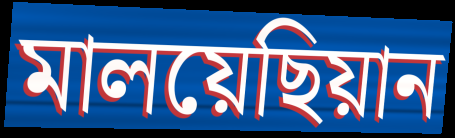
মালয়েছিয়ান